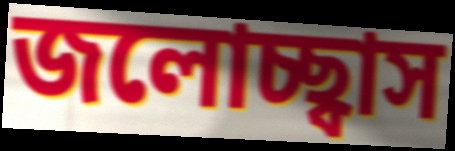
জলোচ্ছ্বাস